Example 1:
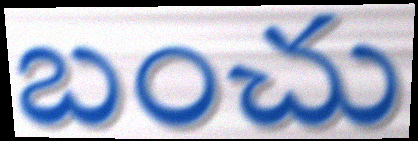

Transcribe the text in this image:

బంచు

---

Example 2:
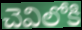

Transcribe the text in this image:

చెవిలోకి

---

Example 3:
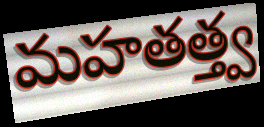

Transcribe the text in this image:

మహతత్త్వ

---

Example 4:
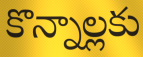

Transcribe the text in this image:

కొన్నాల్లకు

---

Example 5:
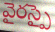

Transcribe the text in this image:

వైరస్పై